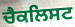
ਚੈਕਲਿਸਟ